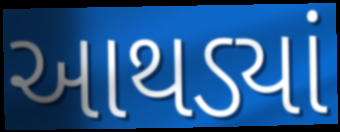
આથડ્યાં